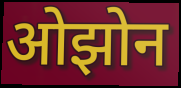
ओझोन